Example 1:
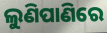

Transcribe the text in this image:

ଲୁଣିପାଣିରେ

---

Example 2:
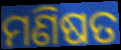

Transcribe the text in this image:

ମଣିଷତ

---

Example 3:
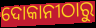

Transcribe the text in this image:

ଦୋକାନୀଠାରୁ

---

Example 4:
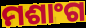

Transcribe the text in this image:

ମଶାଂଗ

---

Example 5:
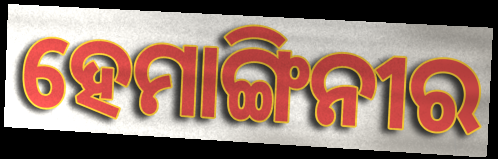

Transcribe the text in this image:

ହେମାଙ୍ଗିନୀର